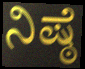
ನಿಷ್ಠೆ